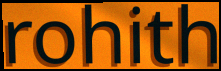
rohith